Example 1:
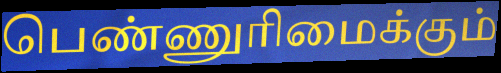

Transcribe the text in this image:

பெண்ணுரிமைக்கும்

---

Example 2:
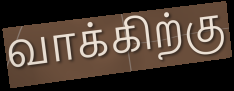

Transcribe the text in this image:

வாக்கிற்கு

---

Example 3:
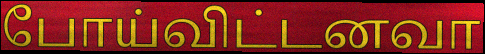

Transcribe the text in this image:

போய்விட்டனவா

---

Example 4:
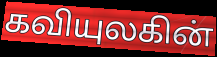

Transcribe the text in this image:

கவியுலகின்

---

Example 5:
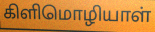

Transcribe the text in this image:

கிளிமொழியாள்